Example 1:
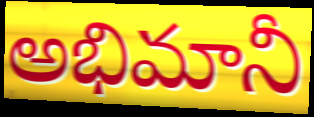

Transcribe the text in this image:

అభిమానీ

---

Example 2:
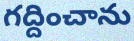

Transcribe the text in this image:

గద్దించాను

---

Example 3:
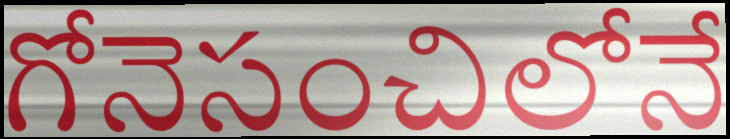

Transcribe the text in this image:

గోనెసంచిలోనే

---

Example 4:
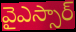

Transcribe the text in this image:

వైఎస్సార్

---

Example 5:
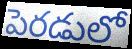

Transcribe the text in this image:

పెరడులో